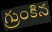
గ్రుంకిన